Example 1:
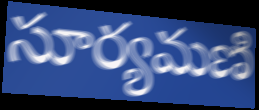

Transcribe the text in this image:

సూర్యమణి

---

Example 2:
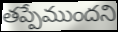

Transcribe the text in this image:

తప్పేముందని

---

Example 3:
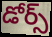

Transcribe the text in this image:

డోర్స్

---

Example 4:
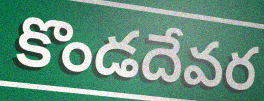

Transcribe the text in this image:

కొండదేవర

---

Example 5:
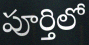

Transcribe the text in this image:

పూర్తిలో